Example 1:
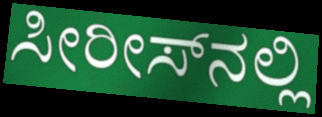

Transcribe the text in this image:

ಸೀರೀಸ್‌ನಲ್ಲಿ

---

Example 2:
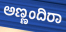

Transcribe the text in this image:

ಅಣ್ಣಂದಿರಾ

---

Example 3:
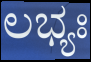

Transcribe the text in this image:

ಲಭ್ಯಃ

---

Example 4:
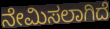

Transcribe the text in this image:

ನೇಮಿಸಲಾಗಿದೆ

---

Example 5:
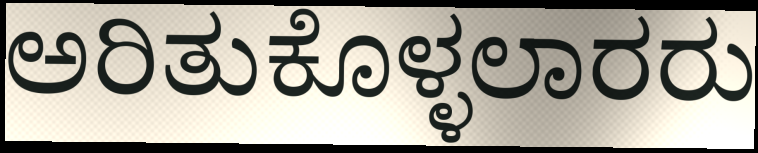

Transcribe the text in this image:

ಅರಿತುಕೊಳ್ಳಲಾರರು